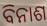
ବିନାଶ